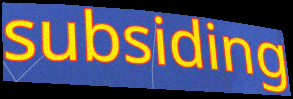
subsiding